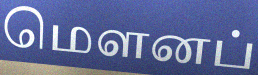
மெளனப்